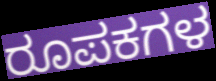
ರೂಪಕಗಳ